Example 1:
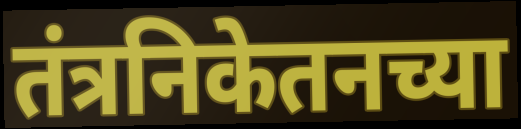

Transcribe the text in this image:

तंत्रनिकेतनच्या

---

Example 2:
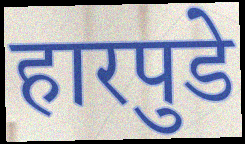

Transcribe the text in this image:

हारपुडे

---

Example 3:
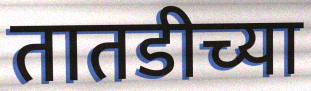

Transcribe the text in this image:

तातडीच्या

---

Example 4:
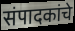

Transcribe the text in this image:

संपादकांचे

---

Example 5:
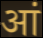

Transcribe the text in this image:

आं